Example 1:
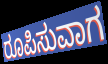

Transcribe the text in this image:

ರೂಪಿಸುವಾಗ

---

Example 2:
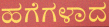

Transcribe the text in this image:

ಹಗೆಗಳಾದ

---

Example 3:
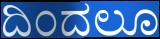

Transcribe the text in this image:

ದಿಂದಲೂ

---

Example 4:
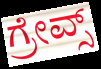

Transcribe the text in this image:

ಗ್ರೇವ್ಸ್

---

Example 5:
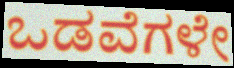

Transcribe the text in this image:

ಒಡವೆಗಳೇ